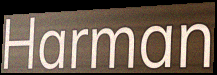
Harman